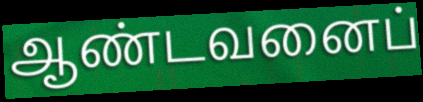
ஆண்டவனைப்